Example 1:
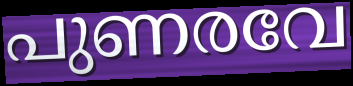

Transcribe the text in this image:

പുണരവേ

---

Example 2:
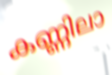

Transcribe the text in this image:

കണ്ണിലാ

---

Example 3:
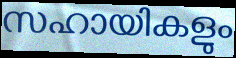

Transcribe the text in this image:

സഹായികളും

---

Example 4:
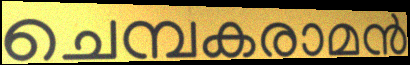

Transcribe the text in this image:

ചെമ്പകരാമൻ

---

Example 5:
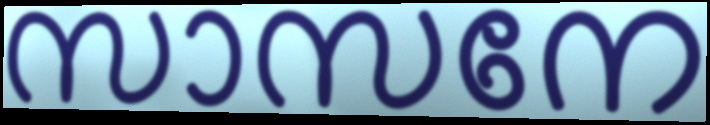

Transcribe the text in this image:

സാസനേ